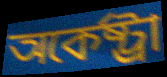
অর্কেষ্ট্রা